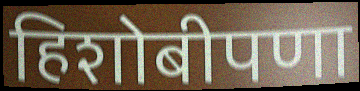
हिशोबीपणा